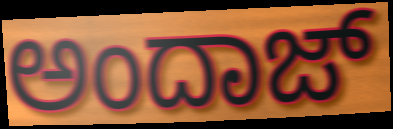
ಅಂದಾಜ್